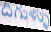
దిగుళ్ళు